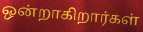
ஒன்றாகிறார்கள்